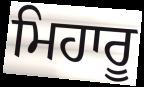
ਮਿਹਾਰੂ